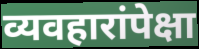
व्यवहारांपेक्षा